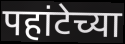
पहांटेच्या